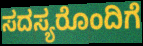
ಸದಸ್ಯರೊಂದಿಗೆ